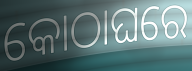
କୋଠାଘରେ